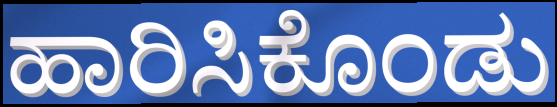
ಹಾರಿಸಿಕೊಂಡು